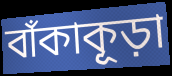
বাঁকাকূড়া